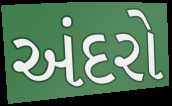
અંદરો